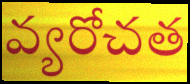
వ్యరోచత